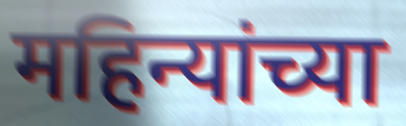
महिन्यांच्या